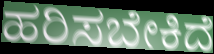
ಹರಿಸಬೇಕಿದೆ